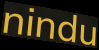
nindu